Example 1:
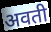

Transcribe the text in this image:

अवती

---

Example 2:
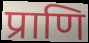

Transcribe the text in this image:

प्राणि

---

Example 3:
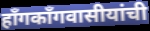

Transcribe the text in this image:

हाँगकाँगवासीयांची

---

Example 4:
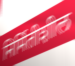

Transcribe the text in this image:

निर्मितीशील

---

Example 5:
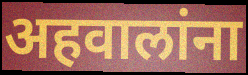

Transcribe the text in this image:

अहवालांना